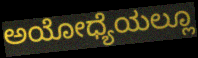
ಅಯೋಧ್ಯೆಯಲ್ಲೂ